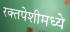
रक्तपेशीमध्ये